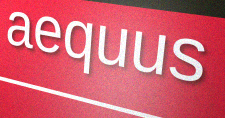
aequus